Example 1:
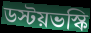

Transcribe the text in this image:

ডস্টয়ভস্কি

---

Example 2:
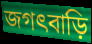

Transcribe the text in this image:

জগৎবাড়ি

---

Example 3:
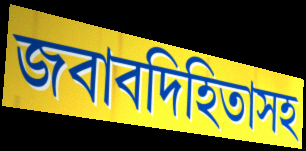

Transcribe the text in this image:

জবাবদিহিতাসহ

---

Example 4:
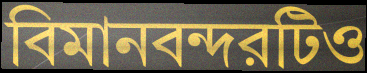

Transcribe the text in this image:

বিমানবন্দরটিও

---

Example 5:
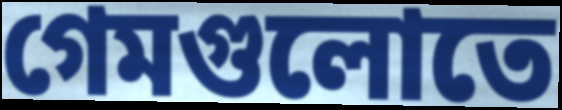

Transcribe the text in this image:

গেমগুলোতে